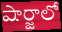
షార్జాలో